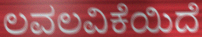
ಲವಲವಿಕೆಯಿದೆ